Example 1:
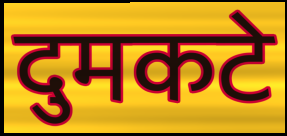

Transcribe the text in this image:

दुमकटे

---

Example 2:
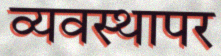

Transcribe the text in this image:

व्यवस्थापर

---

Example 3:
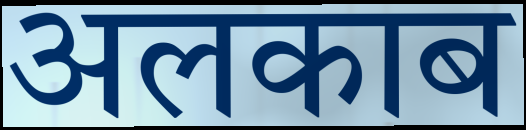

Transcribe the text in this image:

अलकाब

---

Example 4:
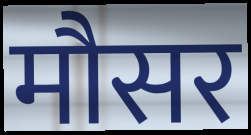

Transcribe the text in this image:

मौसर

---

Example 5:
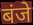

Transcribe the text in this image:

बंजे